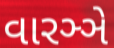
વારઞ્ઞે